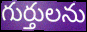
గుర్తులను